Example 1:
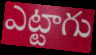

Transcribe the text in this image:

ఎట్టాగు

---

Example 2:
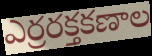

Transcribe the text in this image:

ఎర్రరక్తకణాల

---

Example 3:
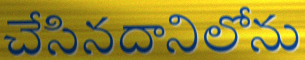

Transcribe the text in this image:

చేసినదానిలోను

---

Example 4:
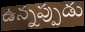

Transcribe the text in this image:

ఉన్నప్పుడు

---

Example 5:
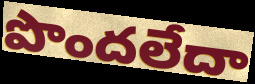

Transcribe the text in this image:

పొందలేదా